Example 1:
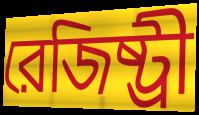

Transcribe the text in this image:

রেজিষ্ট্রী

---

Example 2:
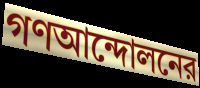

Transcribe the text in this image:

গণআন্দোলনের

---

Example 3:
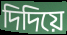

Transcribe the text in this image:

দিদিয়ে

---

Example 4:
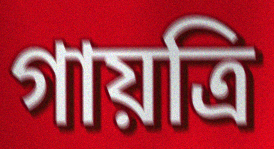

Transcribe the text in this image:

গায়ত্রি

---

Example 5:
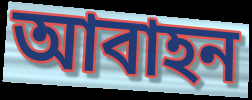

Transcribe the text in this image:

আবাহন